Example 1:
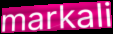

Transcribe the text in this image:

markali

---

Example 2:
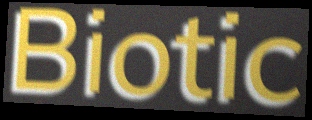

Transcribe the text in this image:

Biotic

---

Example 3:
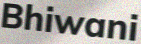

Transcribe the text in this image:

Bhiwani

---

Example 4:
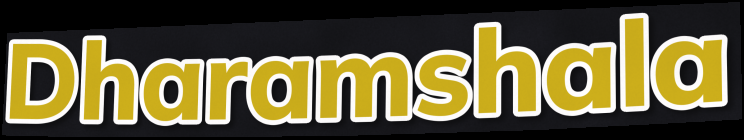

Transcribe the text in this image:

Dharamshala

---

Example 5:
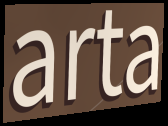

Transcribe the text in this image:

arta